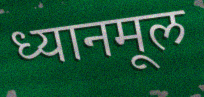
ध्यानमूल